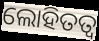
ଲୋହିତତ୍ଵ